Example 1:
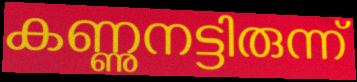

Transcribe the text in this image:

കണ്ണുനട്ടിരുന്ന്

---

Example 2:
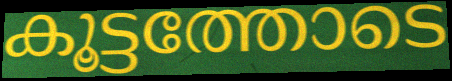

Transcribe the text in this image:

കൂട്ടത്തോടെ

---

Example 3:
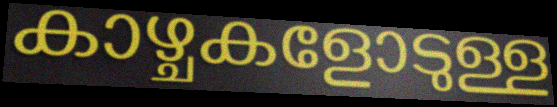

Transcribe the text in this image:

കാഴ്ചകളോടുള്ള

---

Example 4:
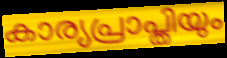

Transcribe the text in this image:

കാര്യപ്രാപ്തിയും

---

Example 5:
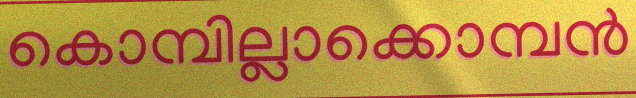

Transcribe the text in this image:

കൊമ്പില്ലാക്കൊമ്പൻ